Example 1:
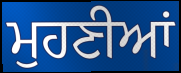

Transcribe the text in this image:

ਮੁਹਣੀਆਂ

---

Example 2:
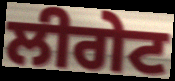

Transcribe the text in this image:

ਲੀਗੇਟ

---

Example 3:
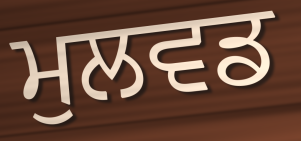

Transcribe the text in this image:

ਮੁਲਵਡ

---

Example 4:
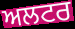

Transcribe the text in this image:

ਅਲਟਰ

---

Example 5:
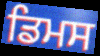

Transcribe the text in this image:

ਡਿਮਸ